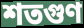
শতগুণ